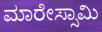
ಮಾರೇಸ್ಸಾಮಿ